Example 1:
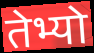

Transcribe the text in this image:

तेभ्यो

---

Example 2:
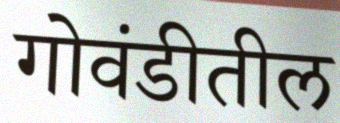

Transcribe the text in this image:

गोवंडीतील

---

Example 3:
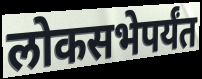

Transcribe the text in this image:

लोकसभेपर्यंत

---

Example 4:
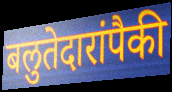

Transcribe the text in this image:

बलुतेदारांपैकी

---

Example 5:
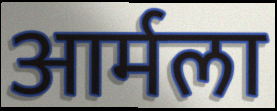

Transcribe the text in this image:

आर्मला